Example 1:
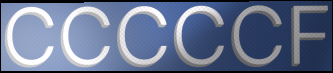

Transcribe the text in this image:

CCCCCF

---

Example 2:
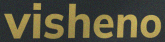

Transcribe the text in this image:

visheno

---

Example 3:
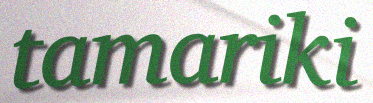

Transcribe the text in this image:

tamariki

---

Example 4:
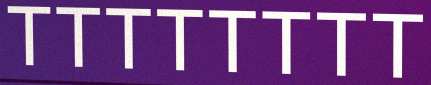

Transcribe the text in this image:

TTTTTTTT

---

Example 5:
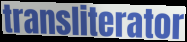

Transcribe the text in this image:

transliterator